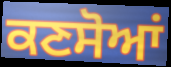
ਕਣਸੋਆਂ